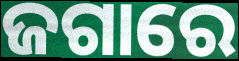
ଜଗାରେ